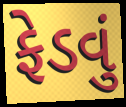
ફેડવું